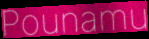
Pounamu